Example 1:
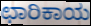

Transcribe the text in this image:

ಛಾರಿಕಾಯ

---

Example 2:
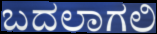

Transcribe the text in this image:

ಬದಲಾಗಲಿ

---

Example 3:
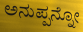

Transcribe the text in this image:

ಅನುಪ್ಪನ್ನೋ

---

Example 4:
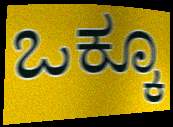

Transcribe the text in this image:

ಒಕ್ಕೂ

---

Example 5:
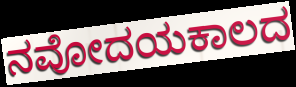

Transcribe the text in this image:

ನವೋದಯಕಾಲದ